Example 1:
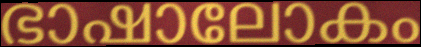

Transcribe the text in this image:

ഭാഷാലോകം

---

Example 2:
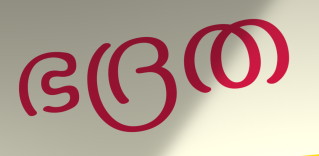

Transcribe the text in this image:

ഭദ്രത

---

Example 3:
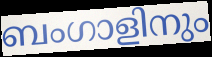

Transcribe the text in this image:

ബംഗാളിനും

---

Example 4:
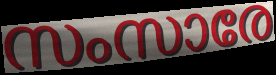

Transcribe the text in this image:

സംസാരേ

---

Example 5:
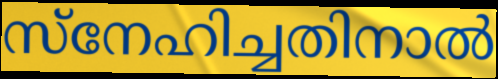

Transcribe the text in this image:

സ്നേഹിച്ചതിനാൽ